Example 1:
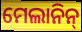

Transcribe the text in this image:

ମେଲାନିନ୍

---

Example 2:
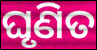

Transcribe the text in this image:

ଘୃଣିତ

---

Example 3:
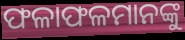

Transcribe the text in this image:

ଫଳାଫଳମାନଙ୍କୁ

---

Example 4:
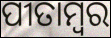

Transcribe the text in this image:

ପୀତାମ୍ୱର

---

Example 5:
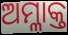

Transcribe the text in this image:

ଅମ୍ଳାକ୍ତ